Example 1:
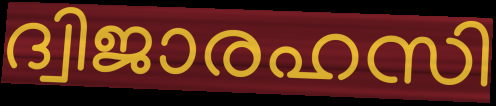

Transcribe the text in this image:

ദ്വിജാരഹസി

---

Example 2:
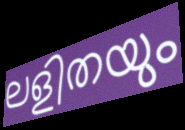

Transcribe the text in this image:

ലളിതയും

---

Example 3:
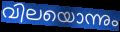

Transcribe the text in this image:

വിലയൊന്നും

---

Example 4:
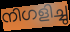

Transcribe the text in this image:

നിഗളിച്ചു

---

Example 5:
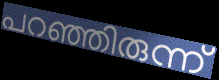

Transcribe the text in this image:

പറഞ്ഞിരുന്ന്